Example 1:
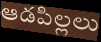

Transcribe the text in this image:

ఆడపిల్లలు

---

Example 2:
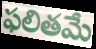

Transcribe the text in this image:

ఫలితమే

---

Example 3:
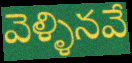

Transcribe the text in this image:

వెళ్ళినవే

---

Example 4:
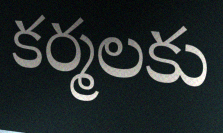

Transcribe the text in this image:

కర్మలకు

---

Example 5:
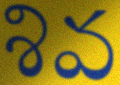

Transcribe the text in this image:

శివ